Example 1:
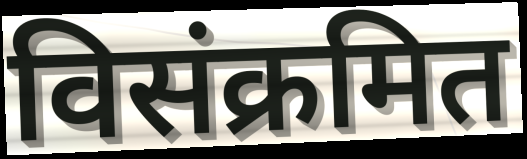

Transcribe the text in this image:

विसंक्रमित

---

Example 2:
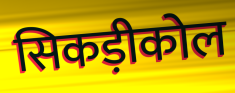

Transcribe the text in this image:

सिकड़ीकोल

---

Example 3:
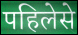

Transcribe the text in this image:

पहिलेसे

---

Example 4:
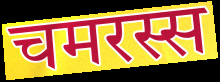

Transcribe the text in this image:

चमरस्स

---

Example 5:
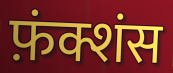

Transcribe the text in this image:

फ़ंक्शंस